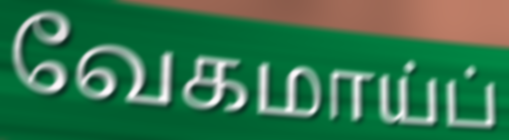
வேகமாய்ப்